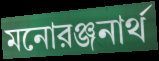
মনোরঞ্জনার্থ